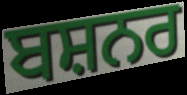
ਬਸ਼ਨਰ